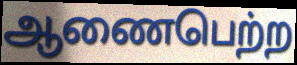
ஆணைபெற்ற